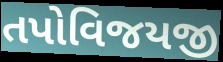
તપોવિજયજી